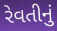
રેવતીનું